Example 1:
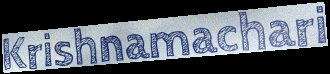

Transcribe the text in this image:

Krishnamachari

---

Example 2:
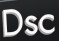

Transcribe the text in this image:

Dsc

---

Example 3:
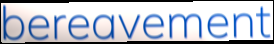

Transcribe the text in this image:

bereavement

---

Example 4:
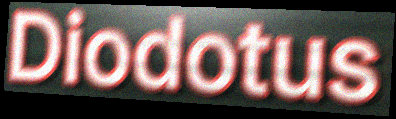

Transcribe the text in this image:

Diodotus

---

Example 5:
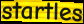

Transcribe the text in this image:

startles